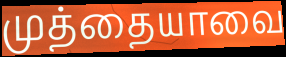
முத்தையாவை